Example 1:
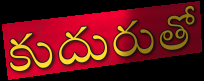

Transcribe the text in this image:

కుదురుతో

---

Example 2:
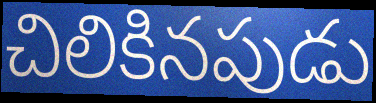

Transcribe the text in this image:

చిలికినపుడు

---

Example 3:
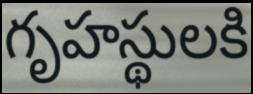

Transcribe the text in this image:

గృహస్థులకి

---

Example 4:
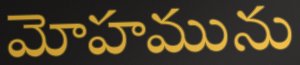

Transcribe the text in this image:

మోహమును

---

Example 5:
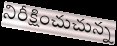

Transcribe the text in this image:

నిరీక్షించుచున్న